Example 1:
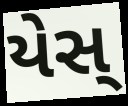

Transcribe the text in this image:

યેસ્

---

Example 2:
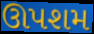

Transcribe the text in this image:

ઊપશમ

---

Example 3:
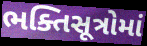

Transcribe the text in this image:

ભક્તિસૂત્રોમાં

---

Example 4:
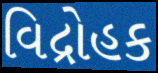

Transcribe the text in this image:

વિદ્રોહક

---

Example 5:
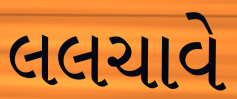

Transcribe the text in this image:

લલચાવે